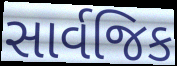
સાર્વજિક